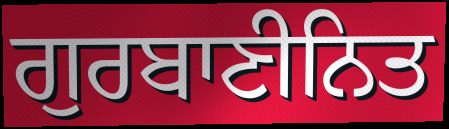
ਗੁਰਬਾਣੀਨਿਤ